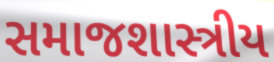
સમાજશાસ્ત્રીય